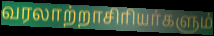
வரலாற்றாசிரியர்களும்